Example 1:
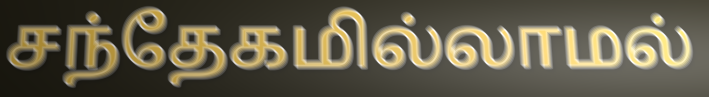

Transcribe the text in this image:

சந்தேகமில்லாமல்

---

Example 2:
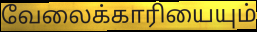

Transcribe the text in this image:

வேலைக்காரியையும்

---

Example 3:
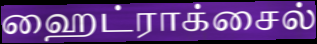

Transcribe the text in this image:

ஹைட்ராக்சைல்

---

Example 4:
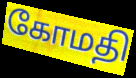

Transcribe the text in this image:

கோமதி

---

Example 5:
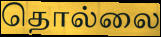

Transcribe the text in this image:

தொல்லை